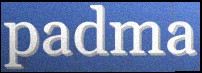
padma